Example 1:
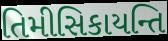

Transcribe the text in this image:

તિમીસિકાયન્તિ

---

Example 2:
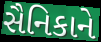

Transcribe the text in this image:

સૈનિકાને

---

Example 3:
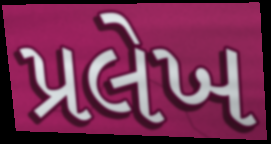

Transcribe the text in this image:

પ્રલેખ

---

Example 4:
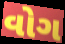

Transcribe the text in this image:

વોગ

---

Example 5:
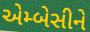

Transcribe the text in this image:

એમ્બેસીને